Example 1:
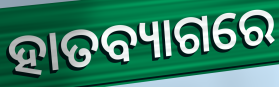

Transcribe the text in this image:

ହାତବ୍ୟାଗରେ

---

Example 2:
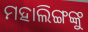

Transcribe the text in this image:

ମହାଲିଙ୍ଗଙ୍କୁ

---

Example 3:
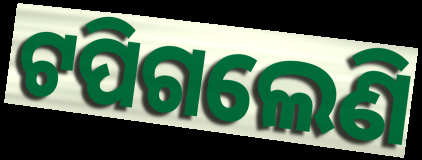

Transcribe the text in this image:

ଟପିଗଲେଣି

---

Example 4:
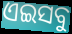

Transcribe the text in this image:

ଏଇସବୁ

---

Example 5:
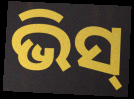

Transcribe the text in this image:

ଭିସ୍